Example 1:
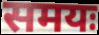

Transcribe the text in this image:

समयः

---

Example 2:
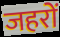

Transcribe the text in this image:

जहरों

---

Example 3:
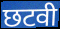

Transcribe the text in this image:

छटवी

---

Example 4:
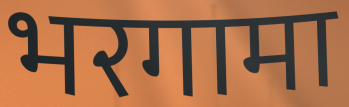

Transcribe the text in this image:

भरगामा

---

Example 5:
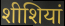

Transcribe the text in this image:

शीशियां